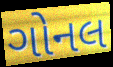
ગોનલ